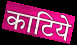
काटिये